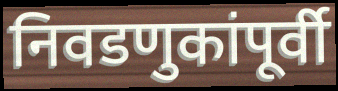
निवडणुकांपूर्वी